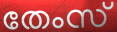
തേംസ്